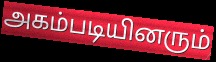
அகம்படியினரும்